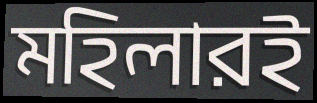
মহিলারই